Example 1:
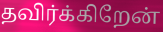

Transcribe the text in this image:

தவிர்க்கிறேன்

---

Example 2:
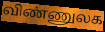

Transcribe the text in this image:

விண்ணுலக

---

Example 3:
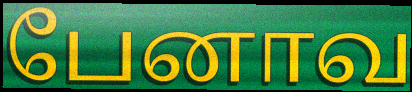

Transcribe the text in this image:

பேனாவ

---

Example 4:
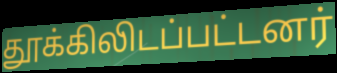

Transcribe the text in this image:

தூக்கிலிடப்பட்டனர்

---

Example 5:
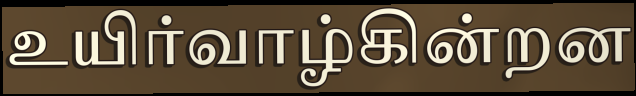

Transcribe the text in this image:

உயிர்வாழ்கின்றன